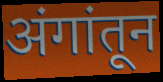
अंगांतून